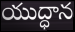
యుద్ధాన